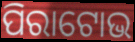
ପିରାଟୋଭ